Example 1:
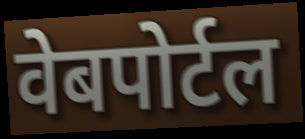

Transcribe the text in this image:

वेबपोर्टल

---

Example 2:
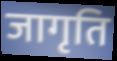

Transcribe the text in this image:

जागृति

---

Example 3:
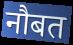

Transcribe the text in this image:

नौबत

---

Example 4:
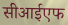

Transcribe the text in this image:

सीआईएफ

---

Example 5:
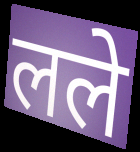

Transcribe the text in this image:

लले